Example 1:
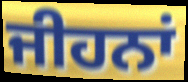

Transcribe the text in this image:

ਜੀਹਨਾਂ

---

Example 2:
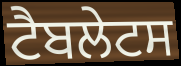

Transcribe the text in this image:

ਟੈਬਲੇਟਸ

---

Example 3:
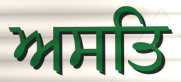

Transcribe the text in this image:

ਅਸਤਿ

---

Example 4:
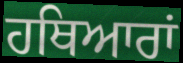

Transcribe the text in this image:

ਹਥਿਆਰਾਂ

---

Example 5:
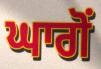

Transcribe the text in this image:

ਘਾਗੋਂ